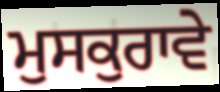
ਮੁਸਕੁਰਾਵੇ